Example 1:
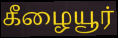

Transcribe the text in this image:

கீழையூர்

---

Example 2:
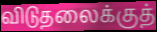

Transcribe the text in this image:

விடுதலைக்குத்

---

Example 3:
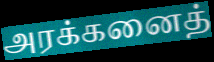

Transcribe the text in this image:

அரக்கனைத்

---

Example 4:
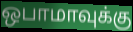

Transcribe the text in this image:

ஒபாமாவுக்கு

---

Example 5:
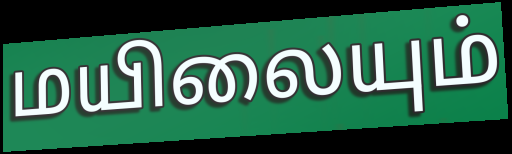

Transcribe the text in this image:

மயிலையும்